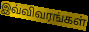
இவ்விவரங்கள்